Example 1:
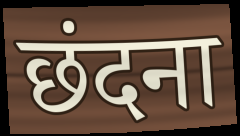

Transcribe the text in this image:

छंदना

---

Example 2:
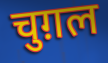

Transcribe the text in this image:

चुग़ल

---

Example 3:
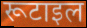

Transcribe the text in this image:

रूटाइल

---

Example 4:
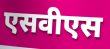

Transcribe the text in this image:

एसवीएस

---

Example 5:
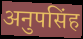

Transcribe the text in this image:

अनुपसिंह